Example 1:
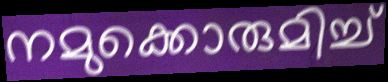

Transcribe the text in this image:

നമുക്കൊരുമിച്ച്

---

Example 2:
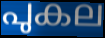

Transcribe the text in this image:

പുകല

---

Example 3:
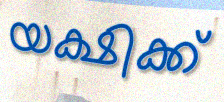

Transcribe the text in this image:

യക്ഷിക്ക്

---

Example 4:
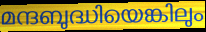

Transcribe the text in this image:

മന്ദബുദ്ധിയെങ്കിലും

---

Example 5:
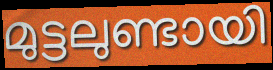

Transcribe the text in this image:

മുട്ടലുണ്ടായി